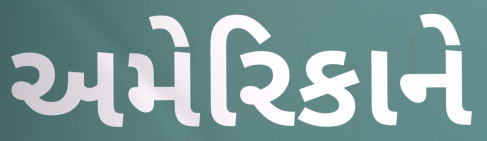
અમેરિકાને